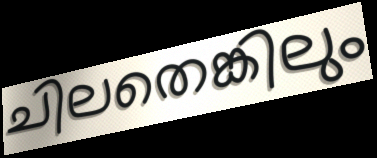
ചിലതെങ്കിലും